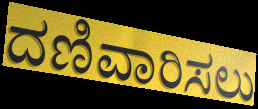
ದಣಿವಾರಿಸಲು